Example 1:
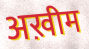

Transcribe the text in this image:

अख़ीम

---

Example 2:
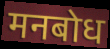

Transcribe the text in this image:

मनबोध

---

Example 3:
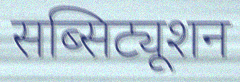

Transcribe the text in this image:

सब्सिट्यूशन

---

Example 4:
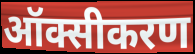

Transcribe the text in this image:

ऑक्सीकरण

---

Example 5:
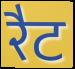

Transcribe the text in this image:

रैट